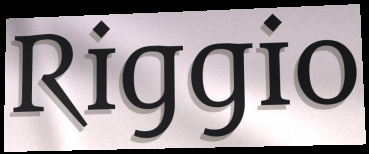
Riggio